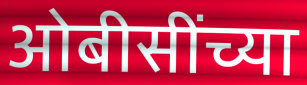
ओबीसींच्या